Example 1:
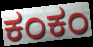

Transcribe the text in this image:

ಕಂಕಂ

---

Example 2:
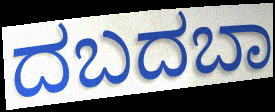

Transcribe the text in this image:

ದಬದಬಾ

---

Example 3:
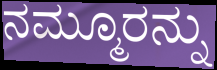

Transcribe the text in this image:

ನಮ್ಮೂರನ್ನು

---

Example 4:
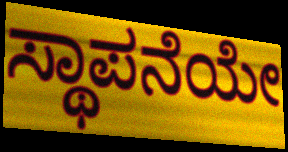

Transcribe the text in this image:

ಸ್ಥಾಪನೆಯೇ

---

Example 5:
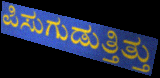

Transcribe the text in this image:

ಪಿಸುಗುಡುತ್ತಿತ್ತು